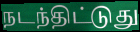
நடந்திட்டுது